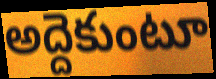
అద్దెకుంటూ